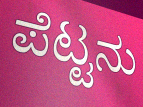
ಪೆಟ್ಟನು